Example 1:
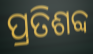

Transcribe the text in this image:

ପ୍ରତିଶବ୍ଦ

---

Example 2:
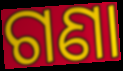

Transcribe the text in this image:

ଗଣା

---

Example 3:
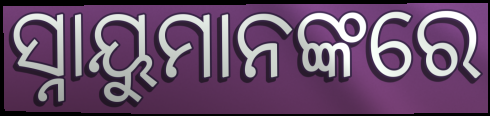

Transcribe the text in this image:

ସ୍ନାୟୁମାନଙ୍କରେ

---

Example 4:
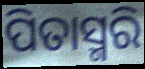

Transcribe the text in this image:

ପିତାସ୍ମରି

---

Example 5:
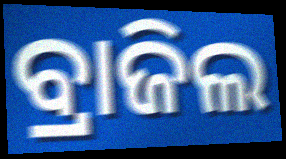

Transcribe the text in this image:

ବ୍ରାଜିଲ